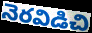
నెరవిడిచి